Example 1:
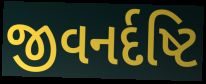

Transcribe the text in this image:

જીવનર્દષ્ટિ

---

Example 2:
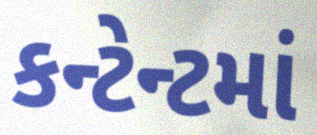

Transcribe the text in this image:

કન્ટેન્ટમાં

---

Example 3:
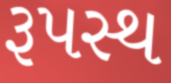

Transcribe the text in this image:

રૂપસ્થ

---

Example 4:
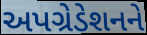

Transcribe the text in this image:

અપગ્રેડેશનને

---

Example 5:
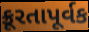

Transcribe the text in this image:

ક્રૂરતાપૂર્વક